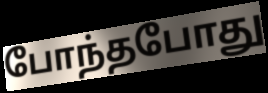
போந்தபோது